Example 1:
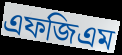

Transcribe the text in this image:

এফজিএম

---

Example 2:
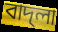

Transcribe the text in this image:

বাদ্‌লা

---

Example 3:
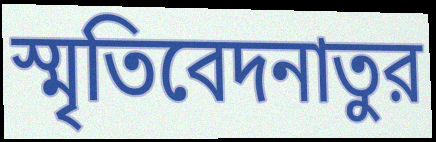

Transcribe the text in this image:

স্মৃতিবেদনাতুর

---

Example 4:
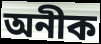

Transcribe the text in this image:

অনীক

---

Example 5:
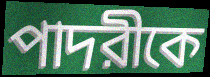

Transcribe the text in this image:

পাদরীকে